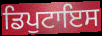
ਡਿਪੁਟਾਇਸ